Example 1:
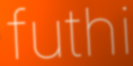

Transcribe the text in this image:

futhi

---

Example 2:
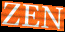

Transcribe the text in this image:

ZEN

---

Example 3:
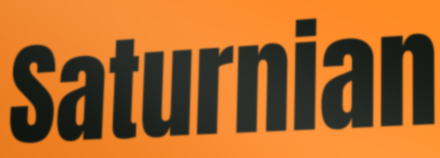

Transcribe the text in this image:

Saturnian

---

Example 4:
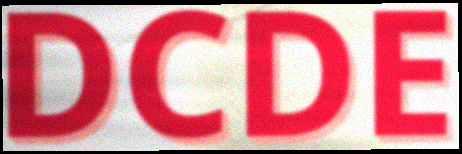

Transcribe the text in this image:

DCDE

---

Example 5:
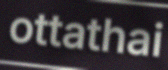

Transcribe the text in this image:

ottathai